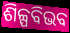
ଶିଳ୍ପବିଭବ